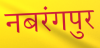
नबरंगपुर